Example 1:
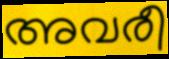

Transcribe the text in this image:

അവരീ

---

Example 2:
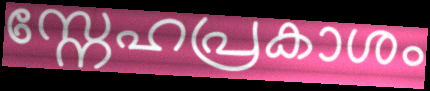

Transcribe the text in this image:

സ്നേഹപ്രകാശം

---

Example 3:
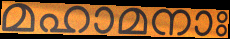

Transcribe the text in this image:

മഹാമനാഃ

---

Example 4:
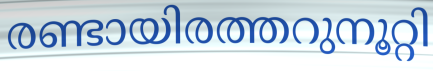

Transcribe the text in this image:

രണ്ടായിരത്തറുനൂറ്റി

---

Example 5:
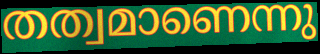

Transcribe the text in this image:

തത്വമാണെന്നു